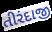
તીરંદાજી